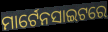
ମାର୍ଟେନସାଇଟରେ